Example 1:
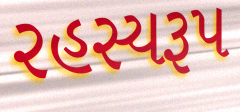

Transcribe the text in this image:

રહસ્યરૂપ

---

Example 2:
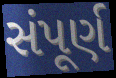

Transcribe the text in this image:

સંપૂર્ણ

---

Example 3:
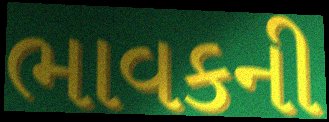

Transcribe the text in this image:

ભાવકની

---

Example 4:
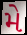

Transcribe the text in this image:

મે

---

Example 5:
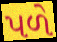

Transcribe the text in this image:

પળે